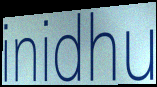
inidhu